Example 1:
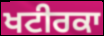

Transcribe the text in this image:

ਖਟੀਰਕਾ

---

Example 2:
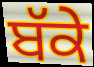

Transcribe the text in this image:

ਬੱਕੇ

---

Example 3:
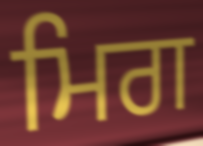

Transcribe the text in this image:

ਮਿਗ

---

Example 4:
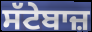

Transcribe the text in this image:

ਸੱਟੇਬਾਜ਼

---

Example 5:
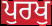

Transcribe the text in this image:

ਪੁਰਖੁ